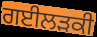
ਗਈਲੜਕੀ